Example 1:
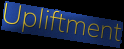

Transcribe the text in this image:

Upliftment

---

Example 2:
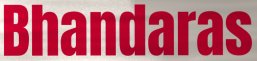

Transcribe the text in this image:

Bhandaras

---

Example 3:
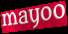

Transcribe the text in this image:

mayoo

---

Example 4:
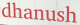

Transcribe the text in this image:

dhanush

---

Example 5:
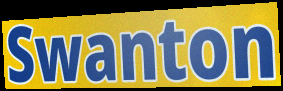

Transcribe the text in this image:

Swanton